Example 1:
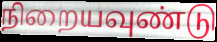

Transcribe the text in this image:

நிறையவுண்டு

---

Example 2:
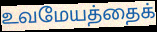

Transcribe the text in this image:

உவமேயத்தைக்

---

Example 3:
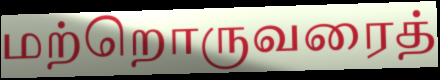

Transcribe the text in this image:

மற்றொருவரைத்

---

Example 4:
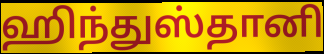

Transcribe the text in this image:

ஹிந்துஸ்தானி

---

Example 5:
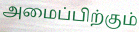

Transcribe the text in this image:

அமைப்பிற்கும்